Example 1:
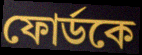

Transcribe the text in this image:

ফোর্ডকে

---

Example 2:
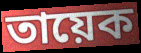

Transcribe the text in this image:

তায়েক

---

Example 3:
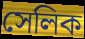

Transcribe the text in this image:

সেলিক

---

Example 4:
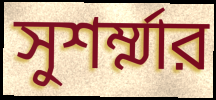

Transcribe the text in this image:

সুশর্ম্মার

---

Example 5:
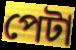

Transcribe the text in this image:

পেটা